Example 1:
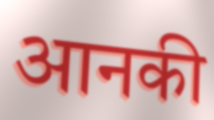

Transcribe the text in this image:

आनकी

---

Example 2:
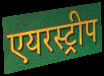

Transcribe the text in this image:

एयरस्ट्रीप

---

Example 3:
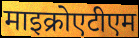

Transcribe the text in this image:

माइक्रोएटीएम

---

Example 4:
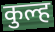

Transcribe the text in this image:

कुल्ह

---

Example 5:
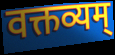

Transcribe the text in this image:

वक्तव्यम्